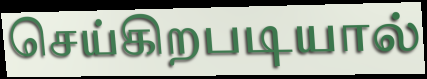
செய்கிறபடியால்